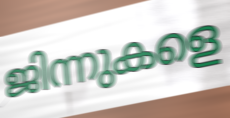
ജിന്നുകളെ